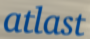
atlast